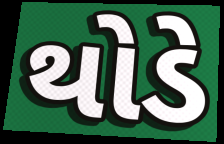
થોડે